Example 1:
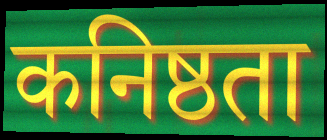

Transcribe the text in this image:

कनिष्ठता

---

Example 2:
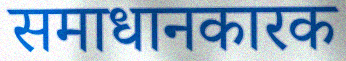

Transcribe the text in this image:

समाधानकारक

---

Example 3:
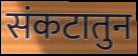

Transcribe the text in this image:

संकटातुन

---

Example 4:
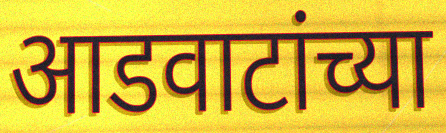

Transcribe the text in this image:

आडवाटांच्या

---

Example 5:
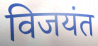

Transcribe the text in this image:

विजयंत